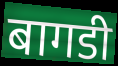
बागडी